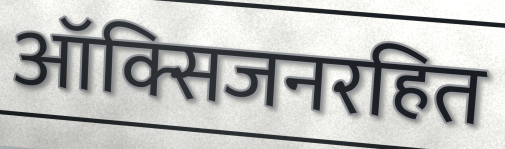
ऑक्सिजनरहित